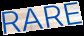
RARE